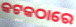
କଟକଠାରେ